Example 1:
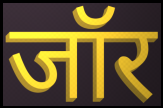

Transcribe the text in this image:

जॉर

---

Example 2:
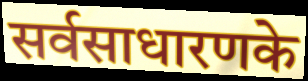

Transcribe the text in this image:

सर्वसाधारणके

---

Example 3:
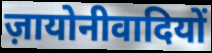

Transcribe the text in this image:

ज़ायोनीवादियों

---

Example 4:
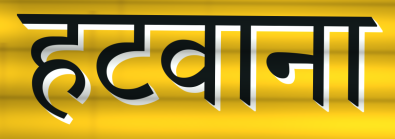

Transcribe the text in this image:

हटवाना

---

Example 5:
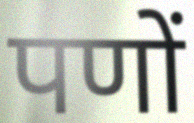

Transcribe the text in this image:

पणों